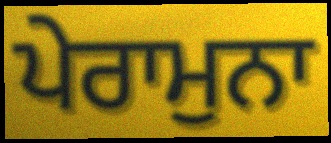
ਪੇਰਾਮੁਨਾ